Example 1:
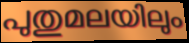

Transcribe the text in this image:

പുതുമലയിലും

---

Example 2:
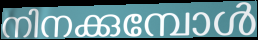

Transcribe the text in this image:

നിനക്കുമ്പോൾ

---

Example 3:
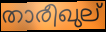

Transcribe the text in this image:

താരീഖുല്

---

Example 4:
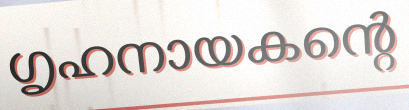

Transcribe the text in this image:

ഗൃഹനായകന്റെ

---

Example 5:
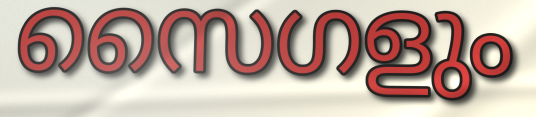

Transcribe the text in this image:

സൈഗളും